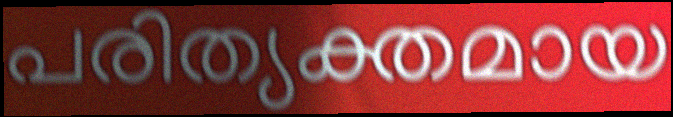
പരിത്യക്തമായ